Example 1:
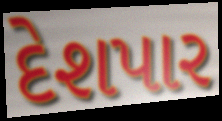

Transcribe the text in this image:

દેશપાર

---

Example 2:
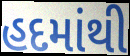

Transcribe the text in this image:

હદમાંથી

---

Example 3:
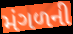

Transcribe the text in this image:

મંગળની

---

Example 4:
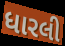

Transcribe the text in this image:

ધારલી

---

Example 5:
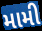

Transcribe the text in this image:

મામી